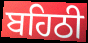
ਬਹਿਠੀ